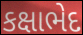
કક્ષાભેદ